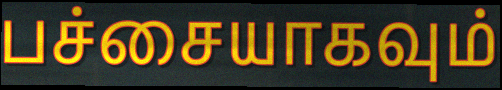
பச்சையாகவும்